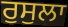
ਰੁਸੁਲਾ